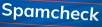
Spamcheck